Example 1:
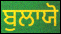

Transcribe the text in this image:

ਬੁਲਾਯੋ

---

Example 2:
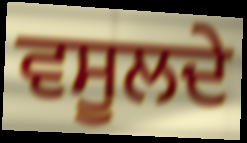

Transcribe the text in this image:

ਵਸੂਲਦੇ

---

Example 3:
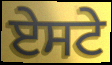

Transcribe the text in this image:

ਏਸਟੇ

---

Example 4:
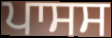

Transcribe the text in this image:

ਪਾਸਸ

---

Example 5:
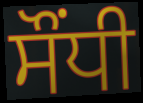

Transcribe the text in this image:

ਸੌਂਧੀ